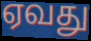
ஏவது